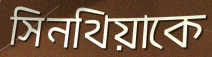
সিনথিয়াকে